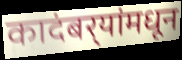
कादंबर्‍यांमधून